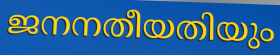
ജനനതീയതിയും